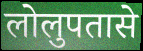
लोलुपतासे